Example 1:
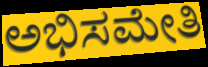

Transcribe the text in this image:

ಅಭಿಸಮೇತಿ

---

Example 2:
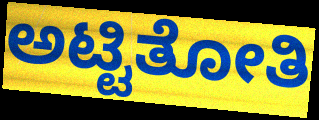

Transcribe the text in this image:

ಅಟ್ಟಿತೋತಿ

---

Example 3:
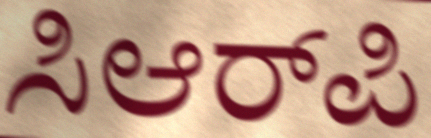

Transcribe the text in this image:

ಸಿಆರ್‌ಪಿ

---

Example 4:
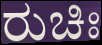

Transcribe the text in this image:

ರುಚಿಃ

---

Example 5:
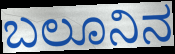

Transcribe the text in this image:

ಬಲೂನಿನ